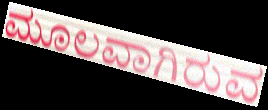
ಮೂಲವಾಗಿರುವ